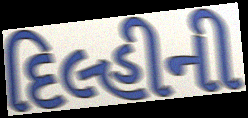
દિલ્હીની